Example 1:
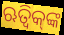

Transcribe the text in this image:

ଋତ୍ୱିକ୍‌ଙ୍କ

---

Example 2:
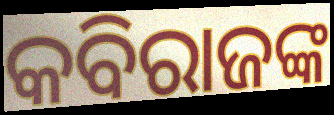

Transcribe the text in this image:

କବିରାଜଙ୍କ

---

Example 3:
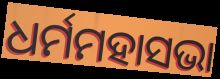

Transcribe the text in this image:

ଧର୍ମମହାସଭା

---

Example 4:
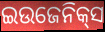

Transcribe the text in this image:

ଇଉଜେନିକ୍‌ସ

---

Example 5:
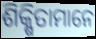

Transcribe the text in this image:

ଶିକ୍ଷିତାମାନେ